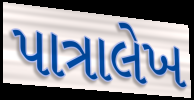
પાત્રાલેખ